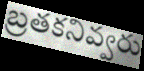
బ్రతకనివ్వరు